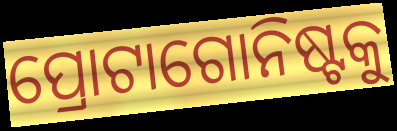
ପ୍ରୋଟାଗୋନିଷ୍ଟକୁ